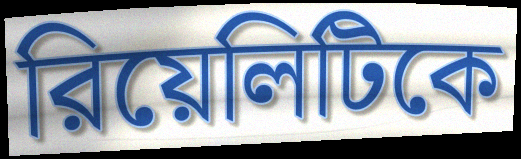
রিয়েলিটিকে